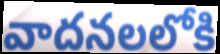
వాదనలలోకి